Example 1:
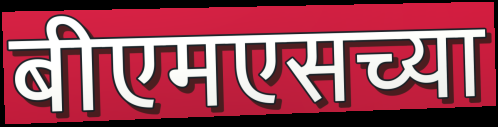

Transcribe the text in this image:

बीएमएसच्या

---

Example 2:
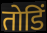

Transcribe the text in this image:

तोडिं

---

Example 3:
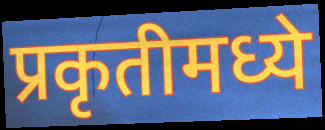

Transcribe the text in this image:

प्रकृतीमध्ये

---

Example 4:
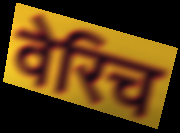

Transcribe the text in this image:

वेरिच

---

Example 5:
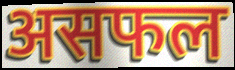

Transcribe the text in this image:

असफल